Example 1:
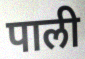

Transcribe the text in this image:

पाली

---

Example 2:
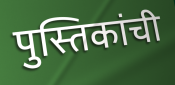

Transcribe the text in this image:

पुस्तिकांची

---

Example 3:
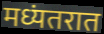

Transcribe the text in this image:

मध्यंतरात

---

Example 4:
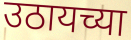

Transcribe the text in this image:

उठायच्या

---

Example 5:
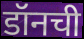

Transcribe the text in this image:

डॉनची